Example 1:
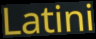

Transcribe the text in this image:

Latini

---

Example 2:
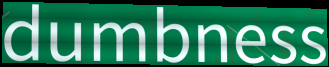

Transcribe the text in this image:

dumbness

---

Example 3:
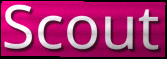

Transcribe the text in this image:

Scout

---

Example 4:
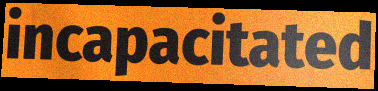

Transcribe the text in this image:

incapacitated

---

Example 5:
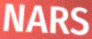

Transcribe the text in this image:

NARS